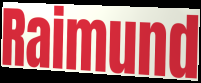
Raimund